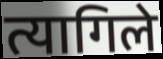
त्यागिले